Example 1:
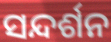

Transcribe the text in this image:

ସନ୍ଦର୍ଶନ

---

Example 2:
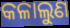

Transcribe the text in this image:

କଳାଲୁଣ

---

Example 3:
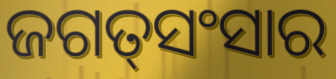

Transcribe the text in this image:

ଜଗତ୍‌ସଂସାର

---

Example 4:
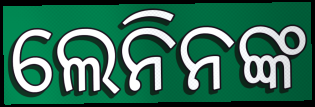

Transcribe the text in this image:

ଲେନିନଙ୍କ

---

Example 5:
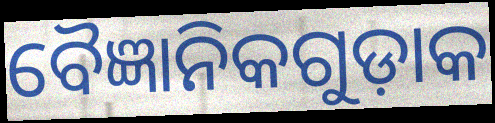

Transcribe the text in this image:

ବୈଜ୍ଞାନିକଗୁଡ଼ାକ